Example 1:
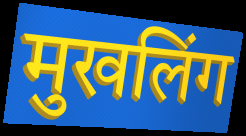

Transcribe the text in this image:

मुखलिंग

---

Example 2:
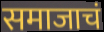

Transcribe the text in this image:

समाजाचं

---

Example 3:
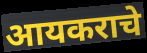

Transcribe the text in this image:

आयकराचे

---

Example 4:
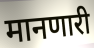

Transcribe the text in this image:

मानणारी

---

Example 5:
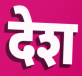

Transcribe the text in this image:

देश